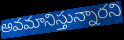
అవమానిస్తున్నారని